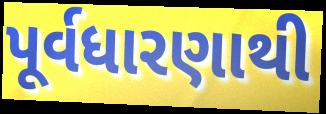
પૂર્વધારણાથી